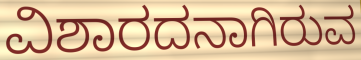
ವಿಶಾರದನಾಗಿರುವ